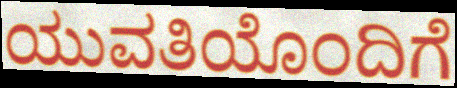
ಯುವತಿಯೊಂದಿಗೆ